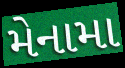
મેનામા